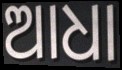
ଆଧା